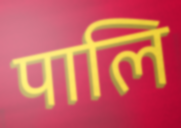
पालि